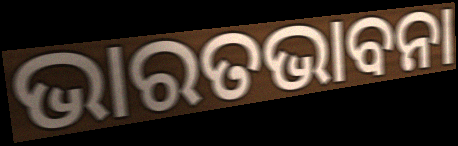
ଭାରତଭାବନା